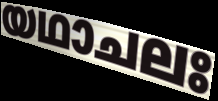
യഥാചലഃ